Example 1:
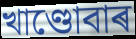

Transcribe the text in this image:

খাণ্ডোবাৰ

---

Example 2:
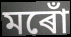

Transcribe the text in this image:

মৰোঁ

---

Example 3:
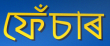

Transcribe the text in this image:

ফেঁচাৰ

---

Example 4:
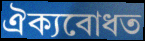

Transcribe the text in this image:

ঐক্যবোধত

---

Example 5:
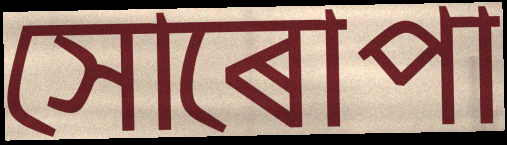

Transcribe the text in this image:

সোৰোপা